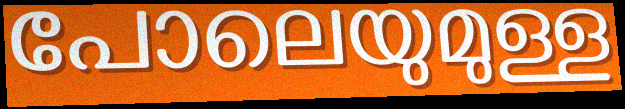
പോലെയുമുള്ള